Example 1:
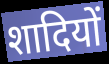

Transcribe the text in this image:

शादियों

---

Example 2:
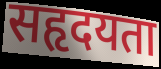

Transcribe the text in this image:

सहृदयता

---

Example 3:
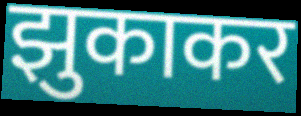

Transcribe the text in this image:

झुकाकर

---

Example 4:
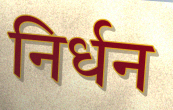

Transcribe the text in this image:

निर्धन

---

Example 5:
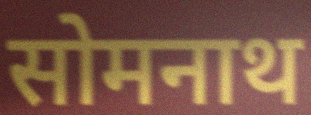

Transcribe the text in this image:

सोमनाथ